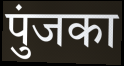
पुंजका